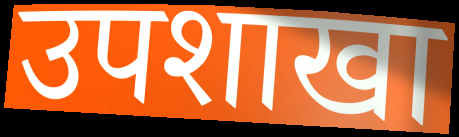
उपशाखा